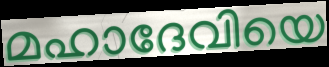
മഹാദേവിയെ